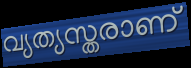
വ്യത്യസ്തരാണ്